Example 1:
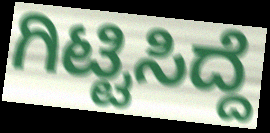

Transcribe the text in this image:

ಗಿಟ್ಟಿಸಿದ್ದೆ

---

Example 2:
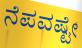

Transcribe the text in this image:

ನೆಪವಷ್ಟೇ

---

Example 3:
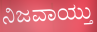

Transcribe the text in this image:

ನಿಜವಾಯ್ತು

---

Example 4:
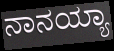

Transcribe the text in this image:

ನಾನಯ್ಯಾ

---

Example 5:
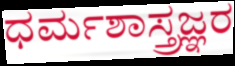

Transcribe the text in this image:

ಧರ್ಮಶಾಸ್ತ್ರಜ್ಞರ